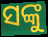
ସଙ୍କୁ